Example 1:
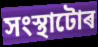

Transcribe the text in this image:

সংস্থাটোৰ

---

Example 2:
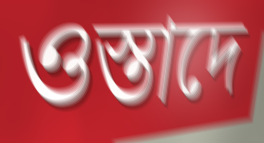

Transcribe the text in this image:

ওস্তাদে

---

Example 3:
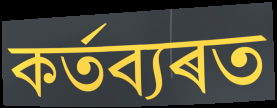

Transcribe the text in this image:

কৰ্তব্যৰত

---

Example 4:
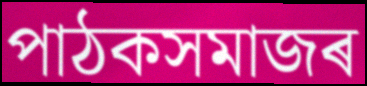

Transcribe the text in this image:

পাঠকসমাজৰ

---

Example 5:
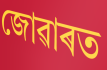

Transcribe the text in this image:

জোৱাৰত